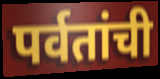
पर्वतांची